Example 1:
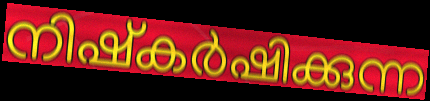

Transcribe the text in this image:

നിഷ്കർഷിക്കുന്ന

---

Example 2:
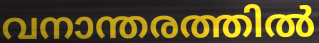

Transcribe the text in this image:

വനാന്തരത്തിൽ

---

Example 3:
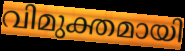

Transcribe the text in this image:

വിമുക്തമായി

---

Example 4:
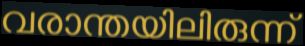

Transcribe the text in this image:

വരാന്തയിലിരുന്ന്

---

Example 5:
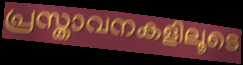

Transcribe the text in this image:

പ്രസ്താവനകളിലൂടെ